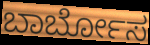
ಬಾರ್ಬೋಸ